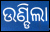
ଉଣ୍ଡିଲା